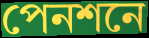
পেনশনে